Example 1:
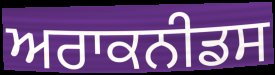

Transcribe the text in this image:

ਅਰਾਕਨੀਡਸ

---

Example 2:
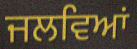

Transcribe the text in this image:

ਜਲਵਿਆਂ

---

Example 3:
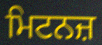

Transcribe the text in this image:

ਮਿਟਨਜ਼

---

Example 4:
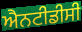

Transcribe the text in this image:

ਐਨਟੀਡੀਸੀ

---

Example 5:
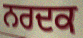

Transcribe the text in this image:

ਨਰਦਕ